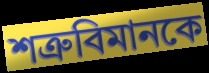
শত্রুবিমানকে